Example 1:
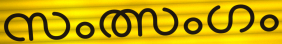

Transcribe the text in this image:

സംത്സംഗം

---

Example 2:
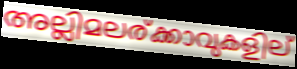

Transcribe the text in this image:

അല്ലിമലര്ക്കാവുകളില്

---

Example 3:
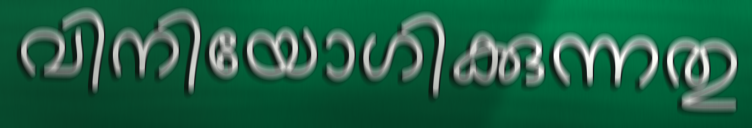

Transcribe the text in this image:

വിനിയോഗിക്കുന്നതു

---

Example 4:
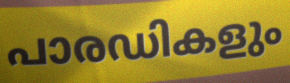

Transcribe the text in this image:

പാരഡികളും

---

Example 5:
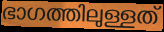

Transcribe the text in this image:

ഭാഗത്തിലുള്ളത്